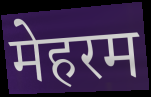
मेहरम